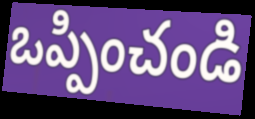
ఒప్పించండి